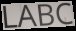
LABC